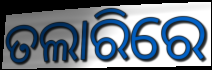
ତଲାରିରେ